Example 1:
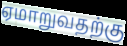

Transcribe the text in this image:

ஏமாறுவதற்கு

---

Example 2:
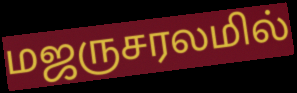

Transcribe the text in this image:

மஜருசரலமில்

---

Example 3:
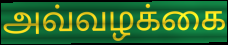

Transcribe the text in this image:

அவ்வழக்கை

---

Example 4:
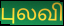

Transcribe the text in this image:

புலவி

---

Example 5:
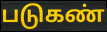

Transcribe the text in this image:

படுகண்